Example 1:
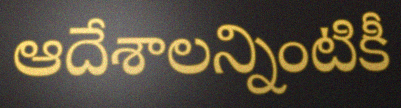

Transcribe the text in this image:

ఆదేశాలన్నింటికీ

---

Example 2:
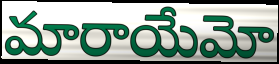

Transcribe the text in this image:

మారాయేమో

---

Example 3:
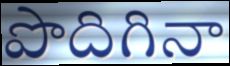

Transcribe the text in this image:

పొదిగినా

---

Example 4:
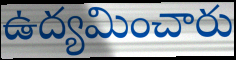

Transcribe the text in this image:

ఉద్యమించారు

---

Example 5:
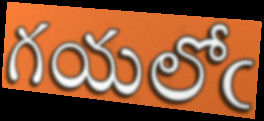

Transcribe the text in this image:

గయలోఁ